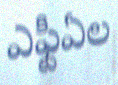
ఎఫ్టీఏల